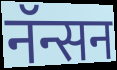
नॅन्सन